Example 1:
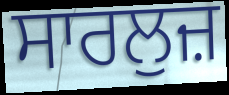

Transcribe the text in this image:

ਸਾਰਲੁਜ਼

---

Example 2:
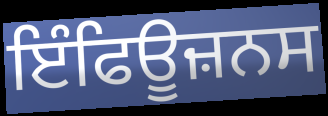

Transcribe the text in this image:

ਇੰਫਿਊਜ਼ਨਸ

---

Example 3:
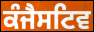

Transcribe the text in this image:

ਕੰਜੈਸਟਿਵ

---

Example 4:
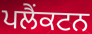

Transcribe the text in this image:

ਪਲੈਂਕਟਨ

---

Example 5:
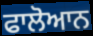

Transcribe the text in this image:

ਫਾਲੋਆਨ